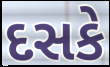
દસકે